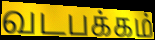
வடபக்கம்